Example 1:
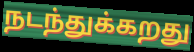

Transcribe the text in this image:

நடந்துக்கறது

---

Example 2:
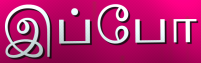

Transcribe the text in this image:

இப்போ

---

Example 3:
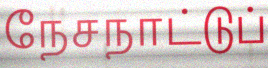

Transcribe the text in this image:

நேசநாட்டுப்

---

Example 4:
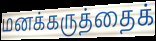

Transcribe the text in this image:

மனக்கருத்தைக்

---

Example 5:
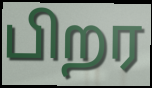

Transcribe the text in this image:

பிறர